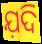
ଯ଼ଦି